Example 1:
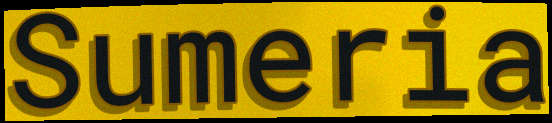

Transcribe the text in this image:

Sumeria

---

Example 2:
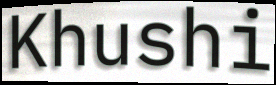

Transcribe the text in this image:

Khushi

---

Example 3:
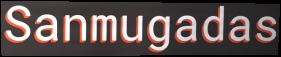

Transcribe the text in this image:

Sanmugadas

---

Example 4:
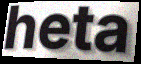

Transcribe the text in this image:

heta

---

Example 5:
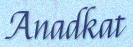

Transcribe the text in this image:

Anadkat